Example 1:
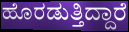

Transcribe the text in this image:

ಹೊರಡುತ್ತಿದ್ದಾರೆ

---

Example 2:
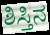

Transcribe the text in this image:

ಶಿಸ್ತಿನ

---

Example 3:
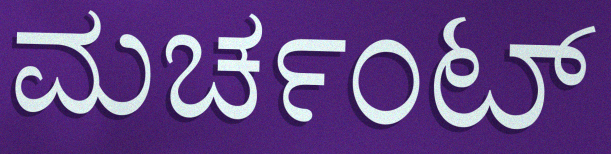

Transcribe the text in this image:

ಮರ್ಚಂಟ್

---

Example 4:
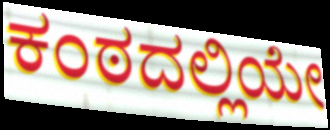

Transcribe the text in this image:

ಕಂಠದಲ್ಲಿಯೇ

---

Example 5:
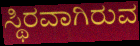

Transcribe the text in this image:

ಸ್ಥಿರವಾಗಿರುವ